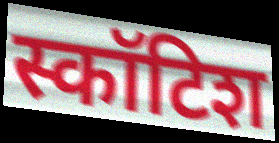
स्कॉटिश